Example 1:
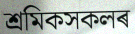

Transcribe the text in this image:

শ্ৰমিকসকলৰ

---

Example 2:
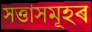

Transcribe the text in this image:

সত্তাসমূহৰ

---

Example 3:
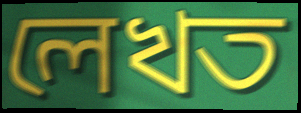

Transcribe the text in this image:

লেখত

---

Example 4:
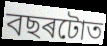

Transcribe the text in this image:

বছৰটোত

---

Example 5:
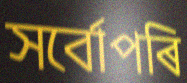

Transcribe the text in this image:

সৰ্বোপৰি